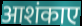
आशंकाए